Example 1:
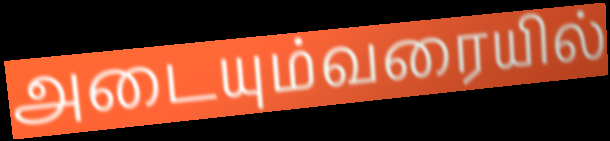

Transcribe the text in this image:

அடையும்வரையில்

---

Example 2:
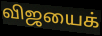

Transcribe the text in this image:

விஜயைக்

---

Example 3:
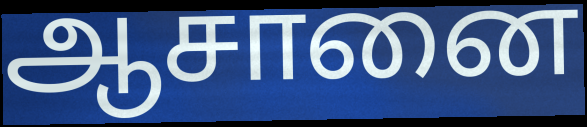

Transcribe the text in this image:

ஆசானை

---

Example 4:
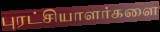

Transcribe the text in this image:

புரட்சியாளர்களை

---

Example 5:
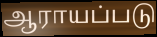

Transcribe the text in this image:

ஆராயப்படு